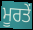
ਮੂਰਤੇਂ